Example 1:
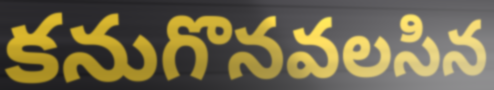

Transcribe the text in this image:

కనుగొనవలసిన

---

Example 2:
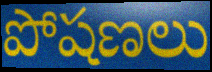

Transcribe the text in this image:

పోషణలు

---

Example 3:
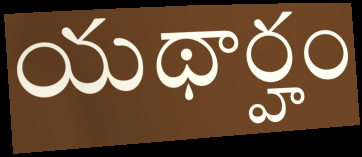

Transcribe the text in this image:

యథార్హం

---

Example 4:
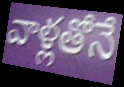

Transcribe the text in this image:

వాళ్లతోనే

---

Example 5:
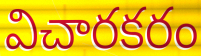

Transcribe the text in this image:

విచారకరం